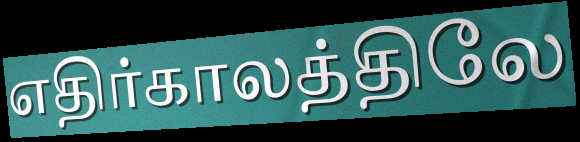
எதிர்காலத்திலே